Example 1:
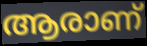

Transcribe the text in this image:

ആരാണ്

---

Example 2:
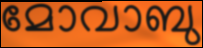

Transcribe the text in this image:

മോവാബു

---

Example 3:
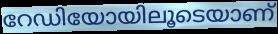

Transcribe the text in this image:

റേഡിയോയിലൂടെയാണ്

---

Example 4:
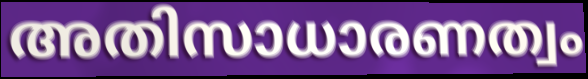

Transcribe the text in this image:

അതിസാധാരണത്വം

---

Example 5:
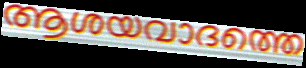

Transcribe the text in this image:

ആശയവാദത്തെ